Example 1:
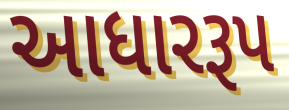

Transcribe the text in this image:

આધારરૂપ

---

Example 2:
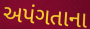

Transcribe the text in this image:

અપંગતાના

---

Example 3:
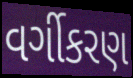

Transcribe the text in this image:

વર્ગીકરણ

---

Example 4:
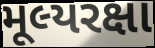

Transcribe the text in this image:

મૂલ્યરક્ષા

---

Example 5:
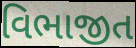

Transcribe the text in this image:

વિભાજીત